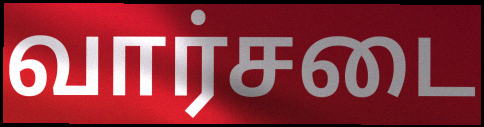
வார்சடை